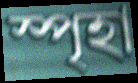
স্পৃহা